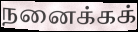
நனைக்கக்